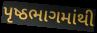
પૃષ્ઠભાગમાંથી